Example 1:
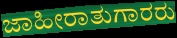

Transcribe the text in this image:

ಜಾಹೀರಾತುಗಾರರು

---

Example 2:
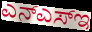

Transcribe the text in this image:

ಎನ್ಎಸ್ಇ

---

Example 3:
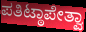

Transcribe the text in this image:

ಪತಿಟ್ಠಾಪೇತ್ವಾ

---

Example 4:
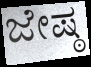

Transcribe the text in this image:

ಜೇಷ್ಠ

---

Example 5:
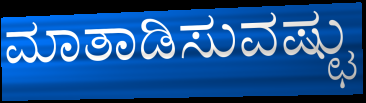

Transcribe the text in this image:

ಮಾತಾಡಿಸುವಷ್ಟು